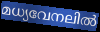
മധ്യവേനലിൽ